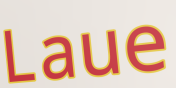
Laue